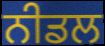
ਨੀਡਲ